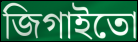
জিগাইতো